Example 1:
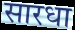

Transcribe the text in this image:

सारधा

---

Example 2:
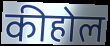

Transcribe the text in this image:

कीहोल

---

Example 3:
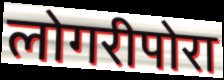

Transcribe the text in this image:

लोगरीपोरा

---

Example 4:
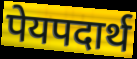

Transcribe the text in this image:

पेयपदार्थ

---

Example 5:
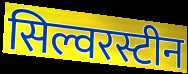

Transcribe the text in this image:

सिल्वरस्टीन